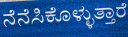
ನೆನೆಸಿಕೊಳ್ಳುತ್ತಾರೆ